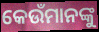
କେଉଁମାନଙ୍କୁ